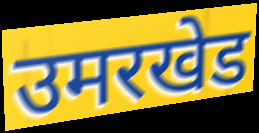
उमरखेड